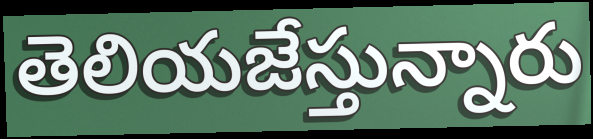
తెలియజేస్తున్నారు